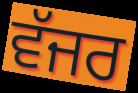
ਵੱਜਰ